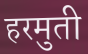
हरमुती